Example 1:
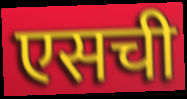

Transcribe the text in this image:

एसची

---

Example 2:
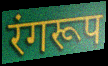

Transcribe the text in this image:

रंगरूप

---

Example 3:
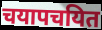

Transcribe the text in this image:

चयापचयित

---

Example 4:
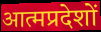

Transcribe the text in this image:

आत्मप्रदेशों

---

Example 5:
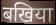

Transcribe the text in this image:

बखिया